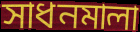
সাধনমালা